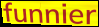
funnier